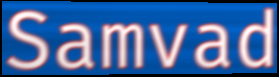
Samvad